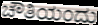
ಚೌತಿಯಂದು